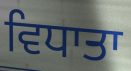
ਵਿਧਾਤਾ